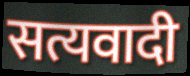
सत्यवादी